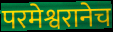
परमेश्वरानेच